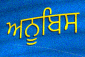
ਅਨੂਬਿਸ